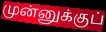
முன்னுக்குப்